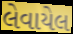
લેવાયેલ